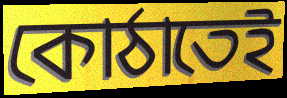
কোঠাতেই